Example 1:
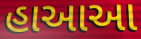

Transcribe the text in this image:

હાઆઆ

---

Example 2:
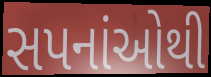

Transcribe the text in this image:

સપનાંઓથી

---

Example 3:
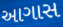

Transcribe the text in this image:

આગાસ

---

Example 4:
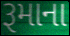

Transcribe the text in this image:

રૂમાના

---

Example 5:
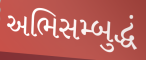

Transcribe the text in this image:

અભિસમ્બુદ્ધં